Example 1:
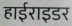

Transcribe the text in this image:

हाईराइडर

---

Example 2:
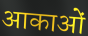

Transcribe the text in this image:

आकाओं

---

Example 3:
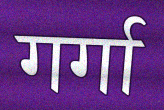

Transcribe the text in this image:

गर्गा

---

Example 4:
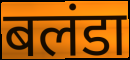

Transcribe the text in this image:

बलंडा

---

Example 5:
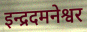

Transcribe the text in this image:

इन्द्रदमनेश्वर